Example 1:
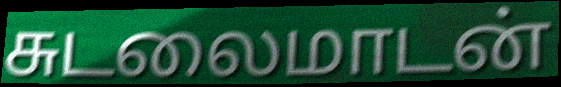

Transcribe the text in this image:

சுடலைமாடன்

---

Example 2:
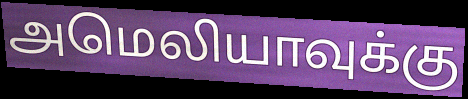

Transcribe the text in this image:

அமெலியாவுக்கு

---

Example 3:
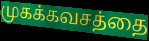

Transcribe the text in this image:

முகக்கவசத்தை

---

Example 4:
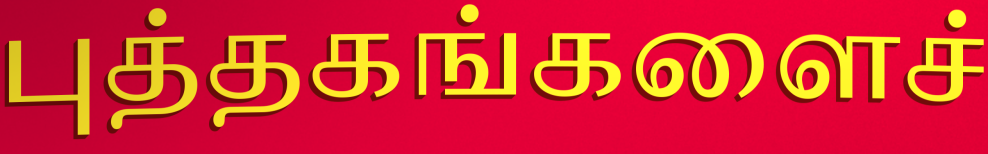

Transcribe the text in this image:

புத்தகங்களைச்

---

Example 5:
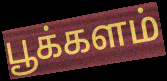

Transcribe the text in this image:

பூக்களம்